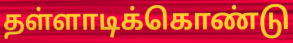
தள்ளாடிக்கொண்டு